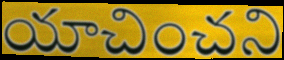
యాచించని